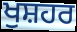
ਖੁਸ਼ਹਰ